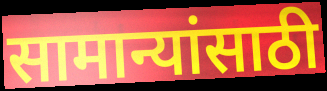
सामान्यांसाठी